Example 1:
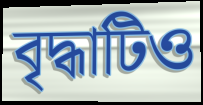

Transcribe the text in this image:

বৃদ্ধাটিও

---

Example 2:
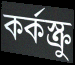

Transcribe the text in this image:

কর্কস্ক্রু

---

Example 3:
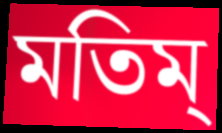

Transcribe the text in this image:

মতিম্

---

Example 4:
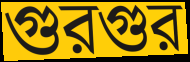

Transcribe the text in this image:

গুরগুর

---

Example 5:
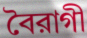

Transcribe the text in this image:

বৈরাগী